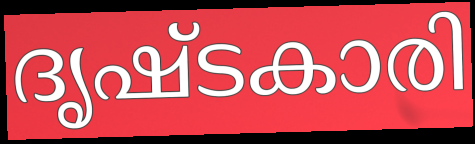
ദൃഷ്ടകാരി